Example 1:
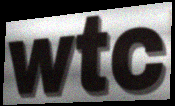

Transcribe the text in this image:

wtc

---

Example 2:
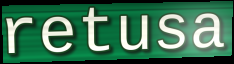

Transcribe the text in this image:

retusa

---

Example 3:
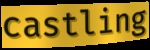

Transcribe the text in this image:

castling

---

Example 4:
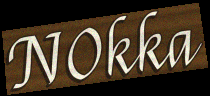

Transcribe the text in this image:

NOkka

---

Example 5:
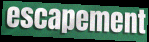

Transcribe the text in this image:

escapement